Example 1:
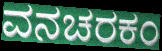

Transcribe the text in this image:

ವನಚರಕಂ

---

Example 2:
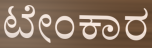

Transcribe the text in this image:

ಟೇಂಕಾರ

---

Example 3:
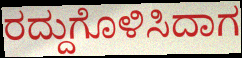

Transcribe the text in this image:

ರದ್ದುಗೊಳಿಸಿದಾಗ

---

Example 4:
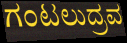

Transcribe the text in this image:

ಗಂಟಲುದ್ರವ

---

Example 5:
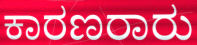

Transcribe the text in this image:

ಕಾರಣರಾರು